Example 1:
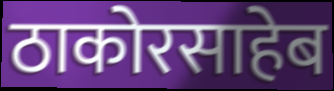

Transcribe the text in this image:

ठाकोरसाहेब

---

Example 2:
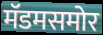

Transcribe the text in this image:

मॅडमसमोर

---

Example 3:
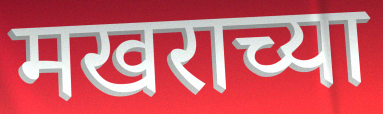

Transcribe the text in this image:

मखराच्या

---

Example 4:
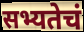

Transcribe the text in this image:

सभ्यतेचं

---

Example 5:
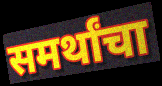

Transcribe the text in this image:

समर्थांचा